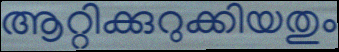
ആറ്റിക്കുറുക്കിയതും